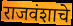
राजवंशाचे